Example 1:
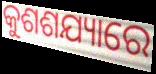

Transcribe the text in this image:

କୁଶଶଯ୍ୟାରେ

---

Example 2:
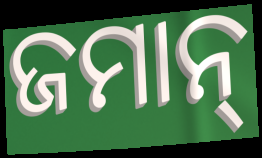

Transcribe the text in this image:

ଜମାନ୍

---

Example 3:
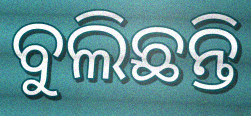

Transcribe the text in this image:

ବୁଲିଛନ୍ତି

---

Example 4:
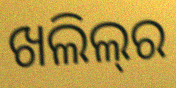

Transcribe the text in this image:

ଖଲିଲ୍‍ର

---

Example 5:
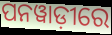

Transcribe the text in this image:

ପନୱାଡ଼ୀରେ